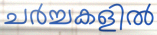
ചർച്ചകളിൽ